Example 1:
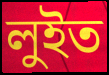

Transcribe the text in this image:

লুইত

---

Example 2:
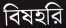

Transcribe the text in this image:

বিষহরি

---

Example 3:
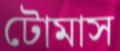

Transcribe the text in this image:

টোমাস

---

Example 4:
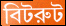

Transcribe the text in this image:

বিটরুট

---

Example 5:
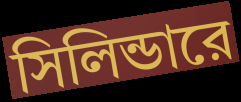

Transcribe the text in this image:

সিলিন্ডারে